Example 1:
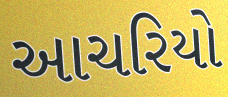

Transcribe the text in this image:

આચરિયો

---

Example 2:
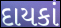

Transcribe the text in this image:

દાયકાં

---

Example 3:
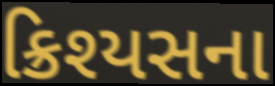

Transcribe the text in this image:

ક્રિશ્યસના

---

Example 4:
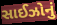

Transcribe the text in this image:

સાઈઝોનું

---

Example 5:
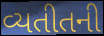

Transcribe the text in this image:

વ્યતીતની